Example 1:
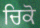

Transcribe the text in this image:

ਚਿਕੋ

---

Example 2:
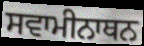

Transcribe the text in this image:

ਸਵਾਮੀਨਾਥਨ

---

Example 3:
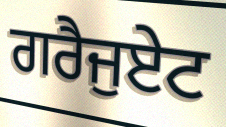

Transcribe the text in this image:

ਗਰੈਜੁਏਟ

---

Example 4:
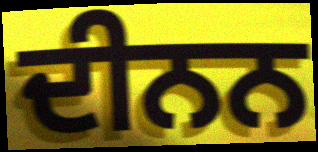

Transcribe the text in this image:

ਦੀਨਨ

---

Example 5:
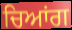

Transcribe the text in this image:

ਚਿਆਂਗ